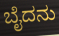
ಬೈದನು